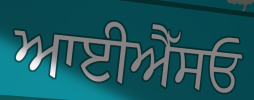
ਆਈਐੱਸਓ